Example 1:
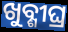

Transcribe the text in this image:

ଖୁବ୍ଶୀଘ୍ର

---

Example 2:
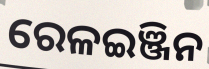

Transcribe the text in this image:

ରେଳଇଞ୍ଜିନ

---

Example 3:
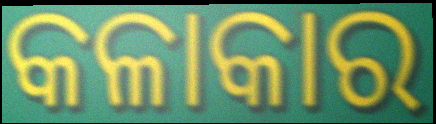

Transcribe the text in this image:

କଳାକାର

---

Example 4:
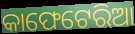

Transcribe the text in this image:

କାଫେଟେରିଆ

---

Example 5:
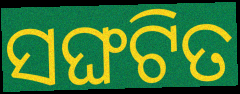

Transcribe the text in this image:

ସଙ୍ଘଟିତ